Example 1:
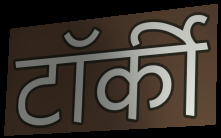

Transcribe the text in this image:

टॉर्की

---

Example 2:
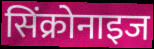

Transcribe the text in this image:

सिंक्रोनाइज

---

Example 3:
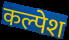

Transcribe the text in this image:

कल्पेश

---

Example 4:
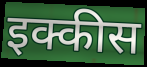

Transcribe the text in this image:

इक्कीस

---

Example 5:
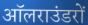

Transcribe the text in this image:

ऑलराउंडरों